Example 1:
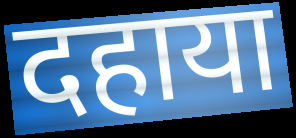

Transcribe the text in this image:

दहाया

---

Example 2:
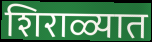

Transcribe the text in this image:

शिराळ्यात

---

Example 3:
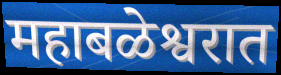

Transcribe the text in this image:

महाबळेश्वरात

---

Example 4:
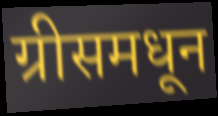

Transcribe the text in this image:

ग्रीसमधून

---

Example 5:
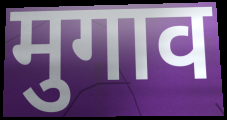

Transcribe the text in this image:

मुगाव